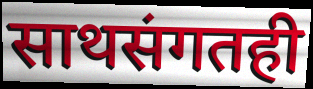
साथसंगतही